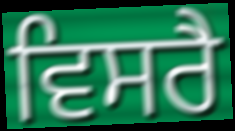
ਵਿਸਰੈ